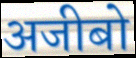
अजीबो